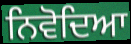
ਨਿਵੋਦਿਆ